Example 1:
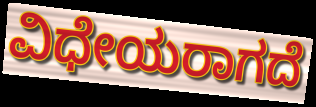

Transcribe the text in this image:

ವಿಧೇಯರಾಗದೆ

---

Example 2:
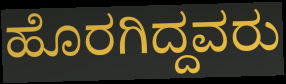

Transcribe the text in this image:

ಹೊರಗಿದ್ದವರು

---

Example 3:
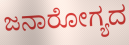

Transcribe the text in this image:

ಜನಾರೋಗ್ಯದ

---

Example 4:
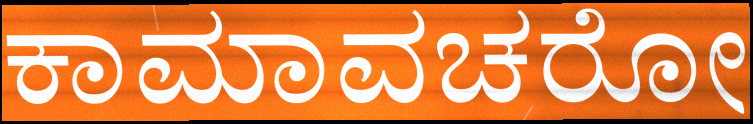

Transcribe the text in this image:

ಕಾಮಾವಚರೋ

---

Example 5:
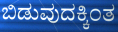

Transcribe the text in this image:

ಬಿಡುವುದಕ್ಕಿಂತ